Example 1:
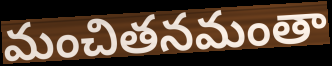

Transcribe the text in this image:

మంచితనమంతా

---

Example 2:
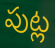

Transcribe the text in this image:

పుట్ల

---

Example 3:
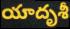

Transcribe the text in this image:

యాదృశీ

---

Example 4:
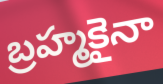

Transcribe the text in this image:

బ్రహ్మకైనా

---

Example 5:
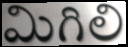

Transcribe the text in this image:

మిగిలి